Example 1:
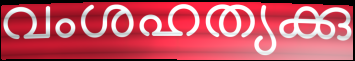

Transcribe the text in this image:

വംശഹത്യക്കു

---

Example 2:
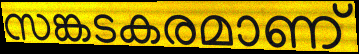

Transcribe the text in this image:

സങ്കടകരമാണ്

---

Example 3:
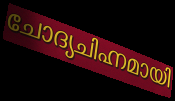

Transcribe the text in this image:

ചോദ്യചിഹ്നമായി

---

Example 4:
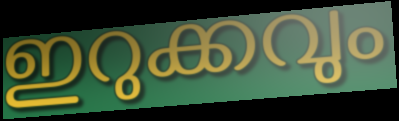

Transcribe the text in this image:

ഇറുക്കവും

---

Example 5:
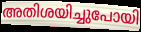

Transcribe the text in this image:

അതിശയിച്ചുപോയി